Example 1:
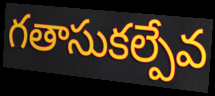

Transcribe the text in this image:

గతాసుకల్పేవ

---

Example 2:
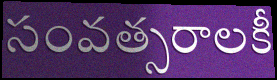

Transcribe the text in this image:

సంవత్సరాలకీ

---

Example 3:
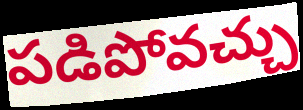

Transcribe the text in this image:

పడిపోవచ్చు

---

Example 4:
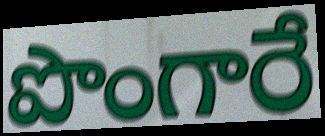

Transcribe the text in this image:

పొంగారే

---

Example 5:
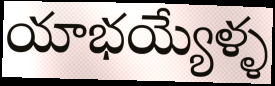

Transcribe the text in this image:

యాభయ్యేళ్ళ